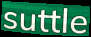
suttle